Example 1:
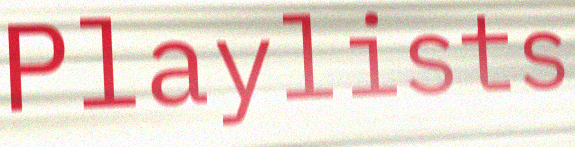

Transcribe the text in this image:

Playlists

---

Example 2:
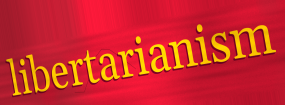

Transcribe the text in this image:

libertarianism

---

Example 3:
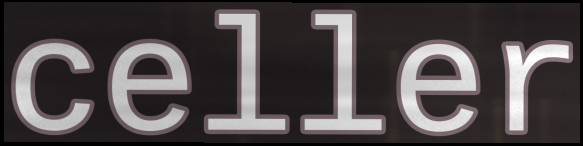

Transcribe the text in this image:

celler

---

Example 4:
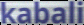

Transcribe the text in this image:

kabali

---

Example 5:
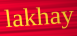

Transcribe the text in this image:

lakhay